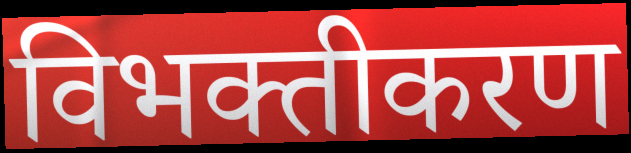
विभक्तीकरण